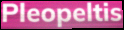
Pleopeltis